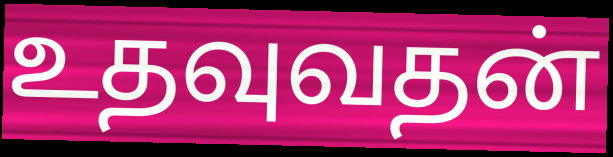
உதவுவதன்